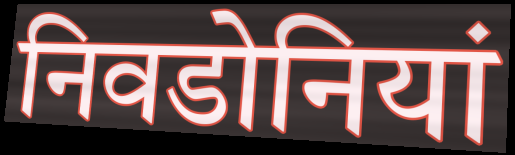
निवडोनियां